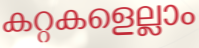
കറ്റകളെല്ലാം